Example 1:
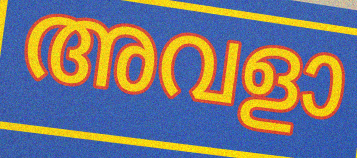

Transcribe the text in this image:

അവളാ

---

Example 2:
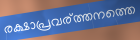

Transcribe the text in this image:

രക്ഷാപ്രവര്ത്തനത്തെ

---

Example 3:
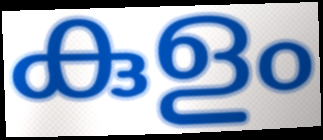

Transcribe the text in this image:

കുളം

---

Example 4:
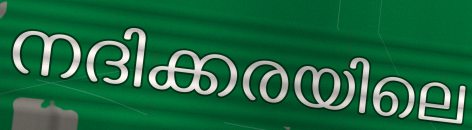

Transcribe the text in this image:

നദിക്കരയിലെ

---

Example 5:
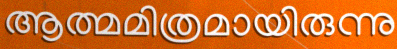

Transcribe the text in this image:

ആത്മമിത്രമായിരുന്നു